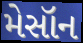
મેસૉન